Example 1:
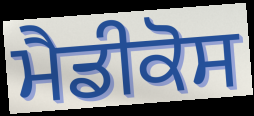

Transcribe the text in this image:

ਮੈਡੀਕੋਸ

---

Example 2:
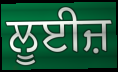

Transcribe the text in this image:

ਲੂਈਜ਼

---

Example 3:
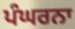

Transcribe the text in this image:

ਪੰਘਰਨਾ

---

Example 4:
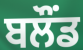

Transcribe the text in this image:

ਬਲੌਂਡ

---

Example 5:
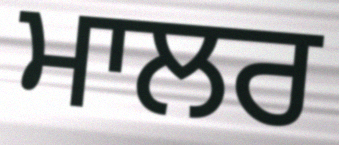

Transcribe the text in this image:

ਮਾਲਰ